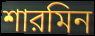
শারমিন